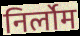
निर्लोम